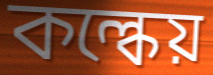
কল্কেয়